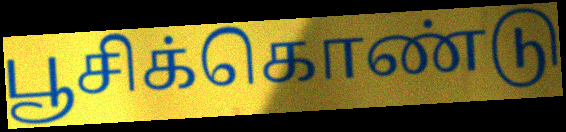
பூசிக்கொண்டு